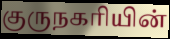
குருநகரியின்